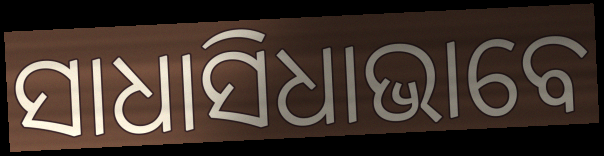
ସାଧାସିଧାଭାବେ